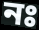
নঃ